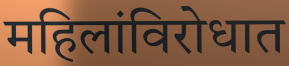
महिलांविरोधात